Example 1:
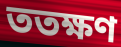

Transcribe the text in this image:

ততক্ষণ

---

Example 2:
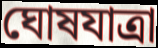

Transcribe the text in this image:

ঘোষযাত্রা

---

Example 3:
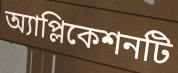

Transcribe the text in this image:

অ্যাপ্লিকেশনটি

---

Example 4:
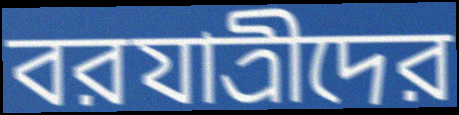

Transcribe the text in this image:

বরযাত্রীদের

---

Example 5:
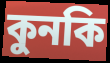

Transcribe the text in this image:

কুনকি